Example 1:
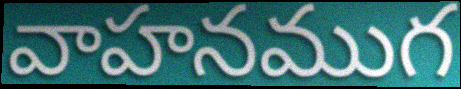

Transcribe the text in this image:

వాహనముగ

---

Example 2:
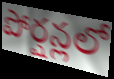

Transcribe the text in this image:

పోర్షన్లలో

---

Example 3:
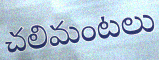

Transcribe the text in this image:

చలిమంటలు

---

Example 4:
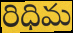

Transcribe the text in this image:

రిధిమ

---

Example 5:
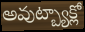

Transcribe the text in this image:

అవుట్బ్యాక్లో